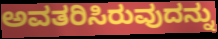
ಅವತರಿಸಿರುವುದನ್ನು